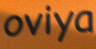
oviya